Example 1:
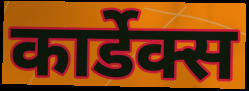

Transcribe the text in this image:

कार्डेक्स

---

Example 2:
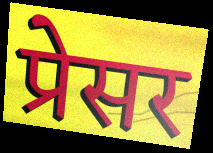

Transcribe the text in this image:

प्रेसर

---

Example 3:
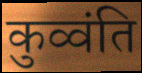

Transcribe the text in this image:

कुव्वंति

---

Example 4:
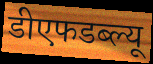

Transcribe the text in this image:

डीएफडब्ल्यू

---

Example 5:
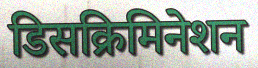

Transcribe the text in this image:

डिसक्रिमिनेशन